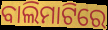
ବାଲିମାଟିରେ